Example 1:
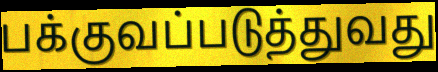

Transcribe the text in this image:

பக்குவப்படுத்துவது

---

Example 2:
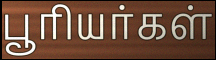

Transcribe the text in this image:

பூரியர்கள்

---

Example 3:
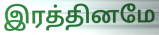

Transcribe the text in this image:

இரத்தினமே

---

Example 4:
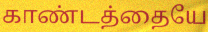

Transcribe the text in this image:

காண்டத்தையே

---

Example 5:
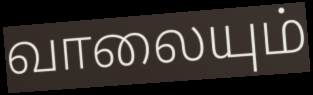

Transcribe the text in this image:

வாலையும்